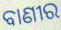
ବାଣୀର